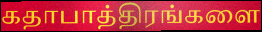
கதாபாத்திரங்களை